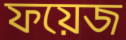
ফয়েজ